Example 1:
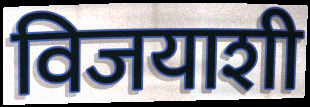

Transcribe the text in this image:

विजयाशी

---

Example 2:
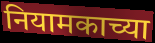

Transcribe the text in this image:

नियामकाच्या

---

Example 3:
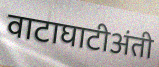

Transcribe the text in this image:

वाटाघाटीअंती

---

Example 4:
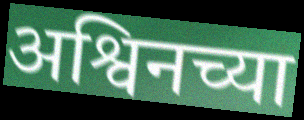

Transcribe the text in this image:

अश्विनच्या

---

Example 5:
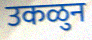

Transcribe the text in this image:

उकळुन